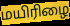
மயிரிழை